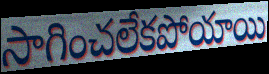
సాగించలేకపోయాయి